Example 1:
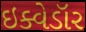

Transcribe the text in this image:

ઇક્વેડૉર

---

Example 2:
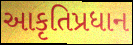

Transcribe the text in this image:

આકૃતિપ્રધાન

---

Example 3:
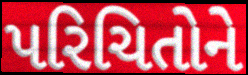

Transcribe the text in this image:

પરિચિતોને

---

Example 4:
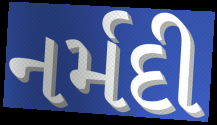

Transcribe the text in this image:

નર્મદી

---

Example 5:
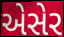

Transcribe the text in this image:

એસેર